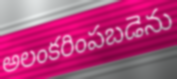
అలంకరింపబడెను